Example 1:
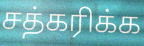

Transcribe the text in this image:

சத்கரிக்க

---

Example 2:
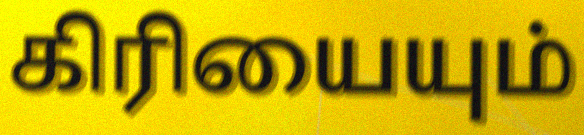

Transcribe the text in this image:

கிரியையும்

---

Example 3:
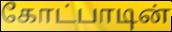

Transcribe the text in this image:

கோட்பாடின்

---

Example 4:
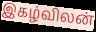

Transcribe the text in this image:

இகழ்விலன்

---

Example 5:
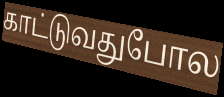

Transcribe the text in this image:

காட்டுவதுபோல